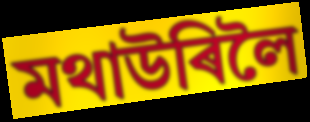
মথাউৰিলৈ